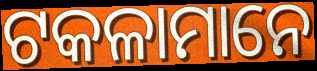
ଟକଳାମାନେ